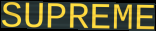
SUPREME